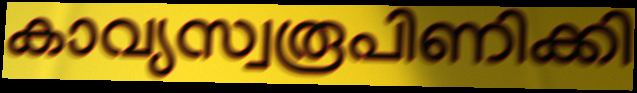
കാവ്യസ്വരൂപിണിക്കി